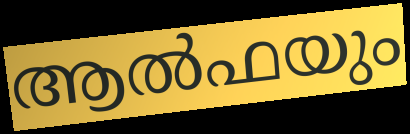
ആൽഫയും